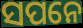
ସପନେ